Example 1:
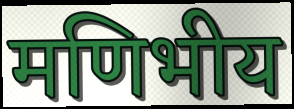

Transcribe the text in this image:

मणिभीय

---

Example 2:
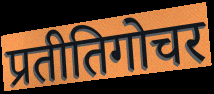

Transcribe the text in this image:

प्रतीतिगोचर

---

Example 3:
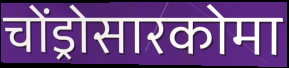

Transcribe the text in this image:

चोंड्रोसारकोमा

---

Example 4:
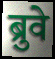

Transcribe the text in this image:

ब्रुवे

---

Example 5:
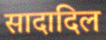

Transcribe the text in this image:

सादादिल